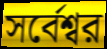
সর্বেশ্বর